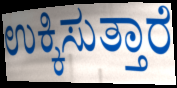
ಉಕ್ಕಿಸುತ್ತಾರೆ